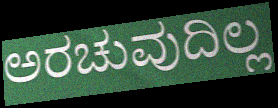
ಅರಚುವುದಿಲ್ಲ